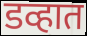
डव्हात